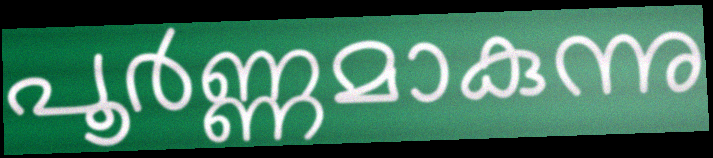
പൂർണ്ണമാകുന്നു